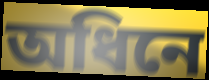
অধিনে